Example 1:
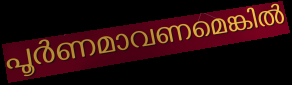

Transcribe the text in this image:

പൂർണമാവണമെങ്കിൽ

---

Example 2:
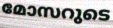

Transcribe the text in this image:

മോസറുടെ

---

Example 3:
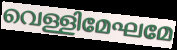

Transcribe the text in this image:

വെള്ളിമേഘമേ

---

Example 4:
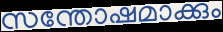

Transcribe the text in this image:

സന്തോഷമാക്കും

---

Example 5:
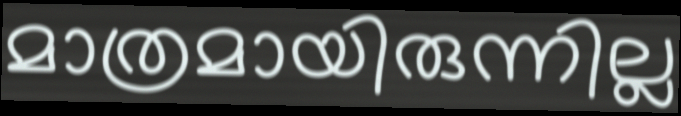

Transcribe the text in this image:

മാത്രമായിരുന്നില്ല